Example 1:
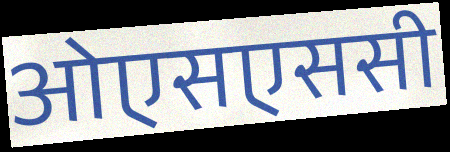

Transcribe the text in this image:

ओएसएससी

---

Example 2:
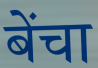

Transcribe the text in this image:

बेंचा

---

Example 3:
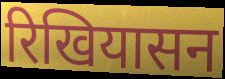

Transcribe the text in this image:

रिखियासन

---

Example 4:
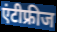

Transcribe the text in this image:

एंटीफ्रीज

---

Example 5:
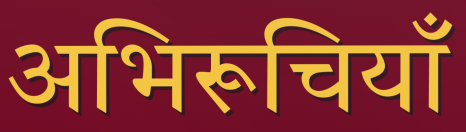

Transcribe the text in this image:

अभिरूचियाँ